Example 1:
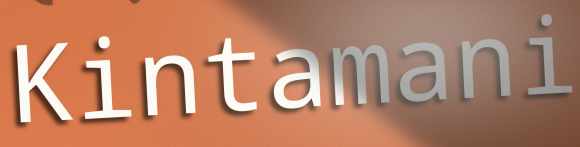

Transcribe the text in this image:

Kintamani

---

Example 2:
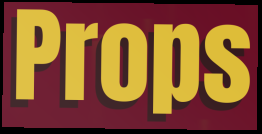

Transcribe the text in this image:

Props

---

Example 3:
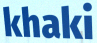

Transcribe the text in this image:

khaki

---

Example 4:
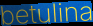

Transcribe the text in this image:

betulina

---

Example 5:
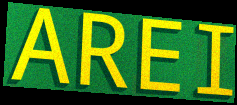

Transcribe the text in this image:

AREI